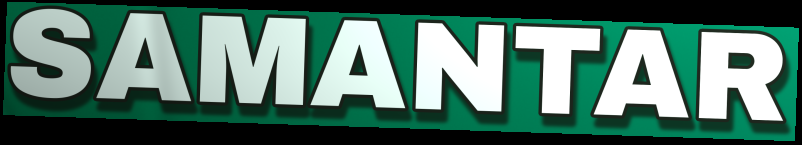
SAMANTAR